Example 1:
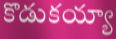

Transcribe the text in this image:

కొడుకయ్యా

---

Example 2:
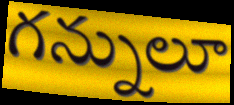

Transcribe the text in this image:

గన్నులూ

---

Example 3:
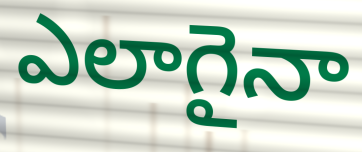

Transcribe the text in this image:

ఎలాగైనా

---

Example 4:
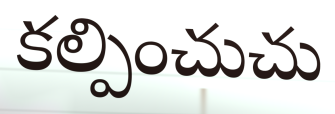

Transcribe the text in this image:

కల్పించుచు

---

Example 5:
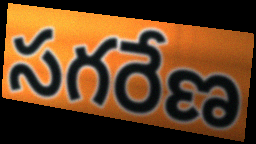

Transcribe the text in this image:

సగరేణ